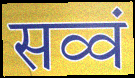
सव्वं